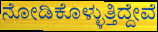
ನೋಡಿಕೊಳ್ಳುತ್ತಿದ್ದೇವೆ